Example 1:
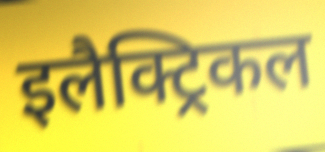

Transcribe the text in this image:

इलैक्ट्रिकल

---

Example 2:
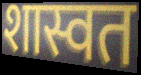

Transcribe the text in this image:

शास्वत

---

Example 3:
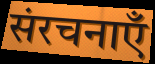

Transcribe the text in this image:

संरचनाएँ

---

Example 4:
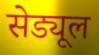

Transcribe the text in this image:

सेड्यूल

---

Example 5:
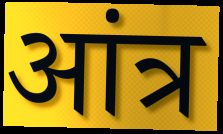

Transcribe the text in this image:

आंत्र